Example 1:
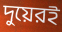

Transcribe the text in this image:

দুয়েরই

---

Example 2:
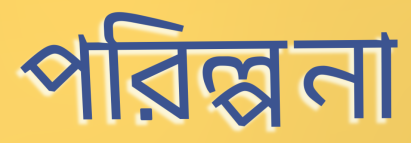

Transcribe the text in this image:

পরিল্পনা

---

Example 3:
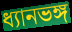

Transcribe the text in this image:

ধ্যানভঙ্গ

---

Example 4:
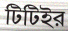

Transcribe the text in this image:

টিটিইর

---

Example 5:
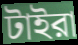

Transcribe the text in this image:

টাইরা